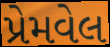
પ્રેમવેલ